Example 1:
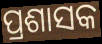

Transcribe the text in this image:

ପ୍ରଶାସକ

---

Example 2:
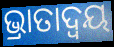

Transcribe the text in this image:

ଭ୍ରାତାଦ୍ୱୟ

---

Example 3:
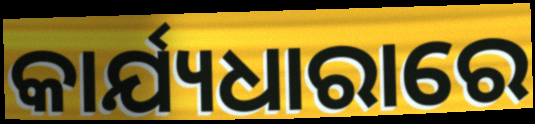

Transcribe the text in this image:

କାର୍ଯ୍ୟଧାରାରେ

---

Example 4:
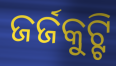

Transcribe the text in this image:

ଜର୍ଜକୁଟ୍ଟି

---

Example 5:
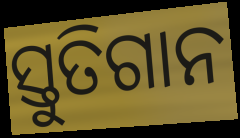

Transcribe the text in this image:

ସ୍ତୁତିଗାନ